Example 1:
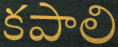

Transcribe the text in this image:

కపాలి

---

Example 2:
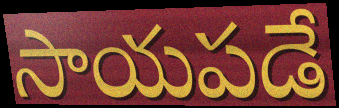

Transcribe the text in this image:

సాయపడే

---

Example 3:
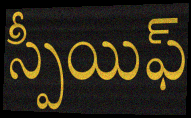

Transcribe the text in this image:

స్పీయిఫ్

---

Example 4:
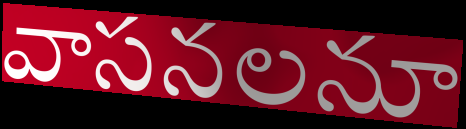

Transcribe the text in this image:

వాసనలనూ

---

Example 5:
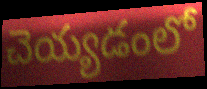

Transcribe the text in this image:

చెయ్యడంలో